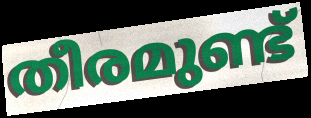
തീരമുണ്ട്